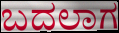
ಬದಲಾಗ